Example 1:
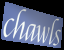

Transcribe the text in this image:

chawls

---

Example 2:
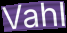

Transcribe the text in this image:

Vahl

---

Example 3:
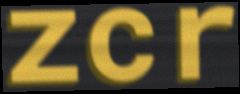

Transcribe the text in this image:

zcr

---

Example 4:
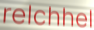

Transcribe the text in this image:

relchhel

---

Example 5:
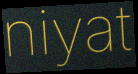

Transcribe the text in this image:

niyat